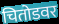
चितोडवर